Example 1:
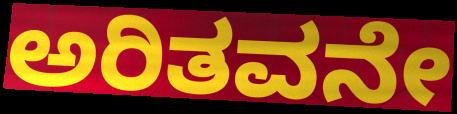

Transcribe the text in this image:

ಅರಿತವನೇ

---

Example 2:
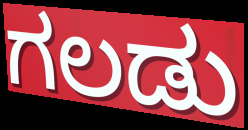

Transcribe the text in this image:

ಗಲಡು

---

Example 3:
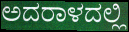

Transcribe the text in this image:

ಅದರಾಳದಲ್ಲಿ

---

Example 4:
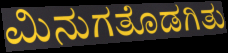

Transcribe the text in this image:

ಮಿನುಗತೊಡಗಿತು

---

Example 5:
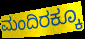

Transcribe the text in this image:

ಮಂದಿರಕ್ಕೂ